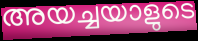
അയച്ചയാളുടെ